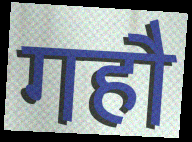
गहौ